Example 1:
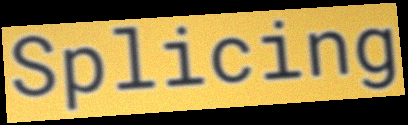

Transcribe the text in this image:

Splicing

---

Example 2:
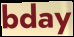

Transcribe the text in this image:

bday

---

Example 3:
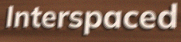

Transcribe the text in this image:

Interspaced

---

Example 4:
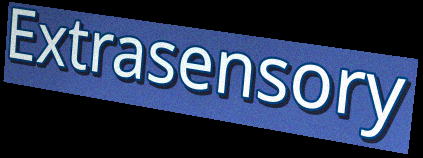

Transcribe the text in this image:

Extrasensory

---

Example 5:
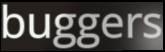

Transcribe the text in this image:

buggers